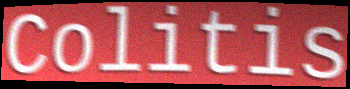
Colitis